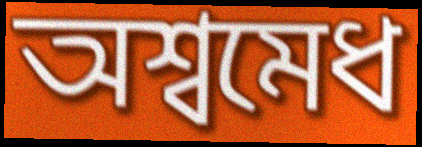
অশ্বমেধ